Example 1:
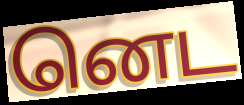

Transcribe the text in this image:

னெட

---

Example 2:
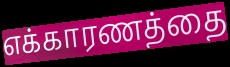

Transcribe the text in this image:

எக்காரணத்தை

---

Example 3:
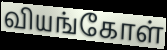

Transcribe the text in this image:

வியங்கோள்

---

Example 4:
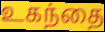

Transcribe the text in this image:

உகந்தை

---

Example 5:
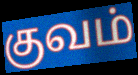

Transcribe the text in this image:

குவம்